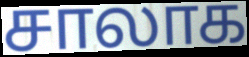
சாலாக